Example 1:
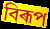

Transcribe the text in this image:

বিৰূপ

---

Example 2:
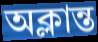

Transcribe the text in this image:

অক্লান্ত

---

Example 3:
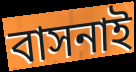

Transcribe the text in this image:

বাসনাই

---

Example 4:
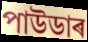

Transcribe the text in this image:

পাউডাৰ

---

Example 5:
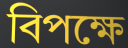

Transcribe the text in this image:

বিপক্ষে